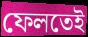
ফেলতেই